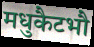
मधुकैटभौ